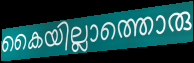
കൈയില്ലാത്തൊരു